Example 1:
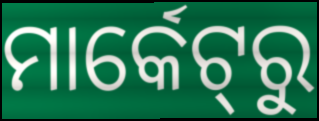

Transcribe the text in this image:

ମାର୍କେଟ୍‌ରୁ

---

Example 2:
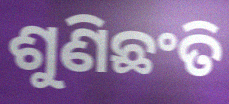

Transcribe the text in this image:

ଶୁଣିଛଂତି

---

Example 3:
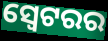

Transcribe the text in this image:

ସ୍ୱେଟରର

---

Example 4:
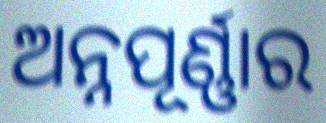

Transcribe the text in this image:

ଅନ୍ନପୂର୍ଣ୍ଣାର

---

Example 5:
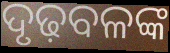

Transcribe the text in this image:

ଦୃଢ଼ବଳଙ୍କ